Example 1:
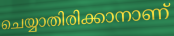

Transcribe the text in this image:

ചെയ്യാതിരിക്കാനാണ്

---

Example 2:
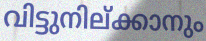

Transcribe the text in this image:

വിട്ടുനില്ക്കാനും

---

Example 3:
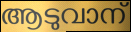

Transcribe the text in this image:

ആടുവാന്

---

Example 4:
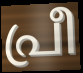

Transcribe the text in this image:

പ്രീ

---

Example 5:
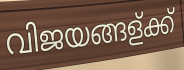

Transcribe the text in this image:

വിജയങ്ങള്ക്ക്